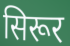
सिरूर